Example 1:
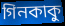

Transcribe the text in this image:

গিনকাকু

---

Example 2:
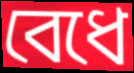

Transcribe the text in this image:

বেধে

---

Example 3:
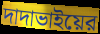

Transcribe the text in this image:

দাদাভাইয়ের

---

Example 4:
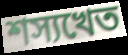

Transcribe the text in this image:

শস্যখেত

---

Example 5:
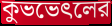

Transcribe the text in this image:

কুভভেৎলের